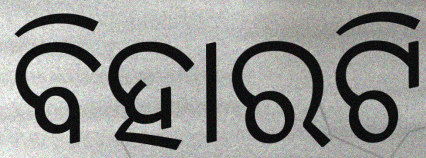
ବିହାରଟି